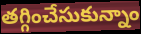
తగ్గించేసుకున్నాం